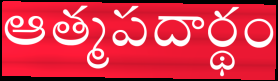
ఆత్మపదార్థం